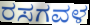
ರಸಗವಳ